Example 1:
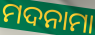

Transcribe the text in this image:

ମଦନାମା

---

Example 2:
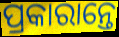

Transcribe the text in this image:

ପ୍ରକାରାନ୍ତେ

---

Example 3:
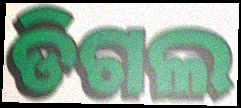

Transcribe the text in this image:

ଡିଗଲ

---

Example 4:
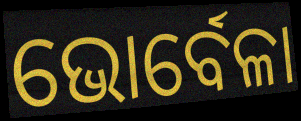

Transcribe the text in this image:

ଭୋର୍ବେଳା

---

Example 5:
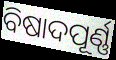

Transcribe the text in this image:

ବିଷାଦପୂର୍ଣ୍ଣ